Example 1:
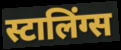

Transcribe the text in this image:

स्टालिंग्स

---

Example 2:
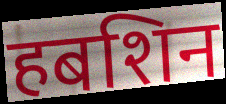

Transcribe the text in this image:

हबशिन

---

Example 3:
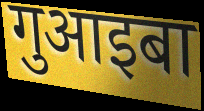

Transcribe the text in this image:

गुआइबा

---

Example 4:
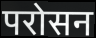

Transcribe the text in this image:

परोसन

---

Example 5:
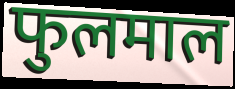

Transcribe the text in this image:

फुलमाल